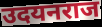
उदयनराज